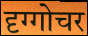
दृग्गोचर